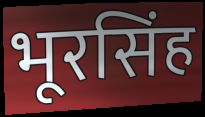
भूरसिंह